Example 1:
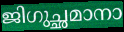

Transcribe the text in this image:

ജിഗുച്ഛമാനാ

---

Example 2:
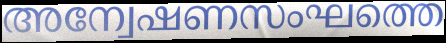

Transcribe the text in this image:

അന്വേഷണസംഘത്തെ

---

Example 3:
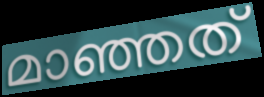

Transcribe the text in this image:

മാഞ്ഞത്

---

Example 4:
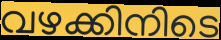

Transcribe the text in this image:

വഴക്കിനിടെ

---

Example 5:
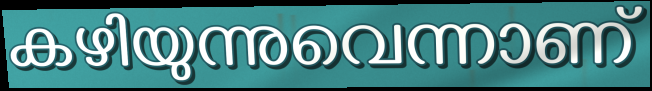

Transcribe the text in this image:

കഴിയുന്നുവെന്നാണ്